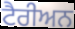
ਟੈਰੀਅਨ